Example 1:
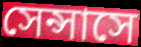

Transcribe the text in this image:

সেন্সাসে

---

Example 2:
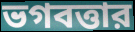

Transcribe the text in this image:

ভগবত্তার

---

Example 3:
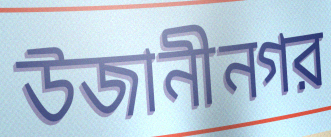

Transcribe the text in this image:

উজানীনগর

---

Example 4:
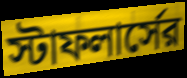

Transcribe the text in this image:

স্টাফলার্সের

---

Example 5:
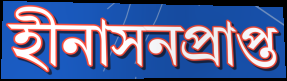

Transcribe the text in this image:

হীনাসনপ্রাপ্ত